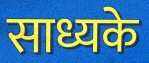
साध्यके